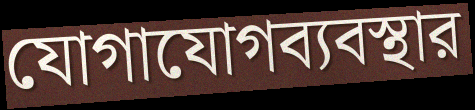
যোগাযোগব্যবস্থার